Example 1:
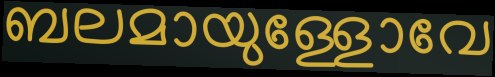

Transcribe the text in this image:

ബലമായുള്ളോവേ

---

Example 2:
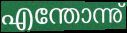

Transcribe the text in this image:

എന്തോന്നു്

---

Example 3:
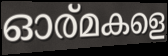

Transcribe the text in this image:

ഓര്മകളെ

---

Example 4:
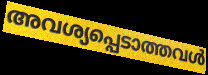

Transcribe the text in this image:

അവശ്യപ്പെടാത്തവൾ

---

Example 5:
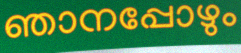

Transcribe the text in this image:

ഞാനപ്പോഴും